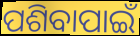
ପଶିବାପାଇଁ